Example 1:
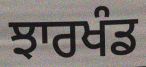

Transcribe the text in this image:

ਝਾਰਖੰਡ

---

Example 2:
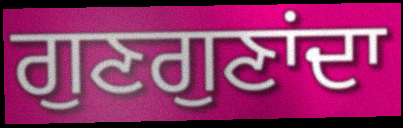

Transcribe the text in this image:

ਗੁਣਗੁਣਾਂਦਾ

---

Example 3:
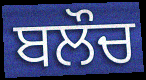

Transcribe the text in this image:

ਬਲੌਚ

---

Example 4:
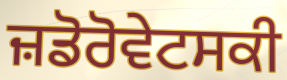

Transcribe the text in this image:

ਜ਼ਡੋਰੋਵੇਟਸਕੀ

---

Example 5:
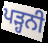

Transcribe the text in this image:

ਪੜ੍ਹਨੀ